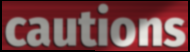
cautions